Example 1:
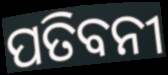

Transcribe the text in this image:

ପତିବନୀ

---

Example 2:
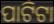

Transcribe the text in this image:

ପାଟିଟା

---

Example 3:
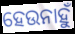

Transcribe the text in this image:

ହେଉନାହୁଁ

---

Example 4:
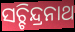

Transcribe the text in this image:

ସଚ୍ଚିନ୍ଦ୍ରନାଥ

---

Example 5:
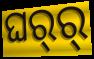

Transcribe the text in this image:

ଘର୍‍ର୍